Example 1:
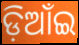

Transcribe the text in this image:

ଡ଼ିଆଁଇ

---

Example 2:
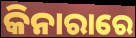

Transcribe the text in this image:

କିନାରାରେ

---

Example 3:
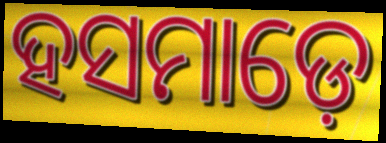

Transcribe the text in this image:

ହସମାଡ଼େ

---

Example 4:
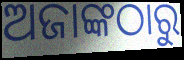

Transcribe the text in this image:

ଅଜାଙ୍କଠାରୁ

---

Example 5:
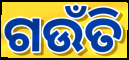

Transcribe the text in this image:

ଗଉଁତି